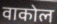
वाकोल